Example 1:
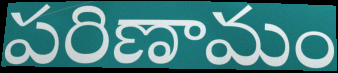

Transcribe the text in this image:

పరిణామం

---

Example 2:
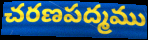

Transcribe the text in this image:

చరణపద్మము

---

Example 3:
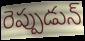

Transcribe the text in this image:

రెప్పుడున్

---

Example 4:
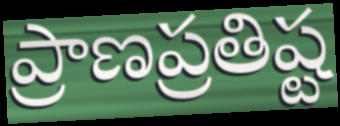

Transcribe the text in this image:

ప్రాణప్రతిష్ట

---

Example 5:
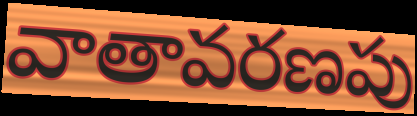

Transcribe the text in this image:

వాతావరణపు